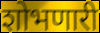
शोभणारी